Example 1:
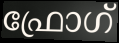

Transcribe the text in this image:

ഫ്രോഗ്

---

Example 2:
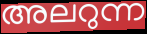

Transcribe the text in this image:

അലറുന്ന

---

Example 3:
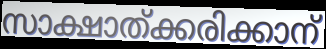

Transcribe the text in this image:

സാക്ഷാത്ക്കരിക്കാന്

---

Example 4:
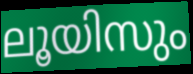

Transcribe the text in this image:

ലൂയിസും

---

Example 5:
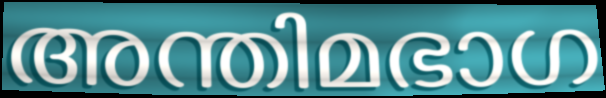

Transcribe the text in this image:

അന്തിമഭാഗ